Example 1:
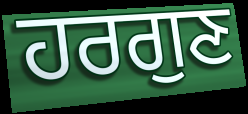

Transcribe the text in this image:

ਹਰਗੁਣ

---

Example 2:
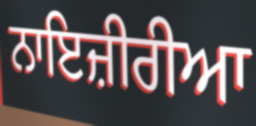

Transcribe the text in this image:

ਨਾਇਜ਼ੀਰੀਆ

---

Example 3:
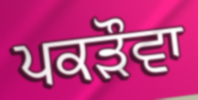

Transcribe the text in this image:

ਪਕੜੌਵਾ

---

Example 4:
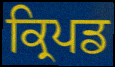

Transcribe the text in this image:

ਕ੍ਰਿਪਡ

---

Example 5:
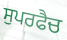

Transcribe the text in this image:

ਸੁਪਰਫੈਚ